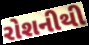
રોશનીથી